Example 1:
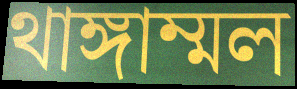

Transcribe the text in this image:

থাঙ্গাম্মল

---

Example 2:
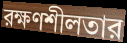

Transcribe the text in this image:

রক্ষণশীলতার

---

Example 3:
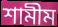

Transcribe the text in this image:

শামীম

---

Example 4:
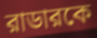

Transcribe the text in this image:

রাডারকে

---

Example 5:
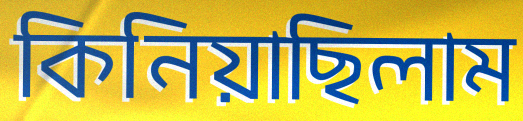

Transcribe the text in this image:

কিনিয়াছিলাম